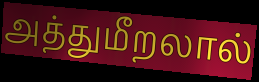
அத்துமீறலால்